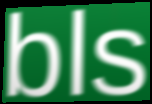
bls